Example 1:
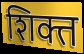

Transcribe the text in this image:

शिक्त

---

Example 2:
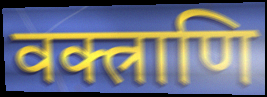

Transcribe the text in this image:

वक्त्राणि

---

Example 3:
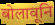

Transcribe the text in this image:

बोलावूनि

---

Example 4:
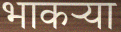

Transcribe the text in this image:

भाकर्‍या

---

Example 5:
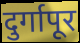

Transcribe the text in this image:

दुर्गापूर